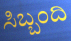
ಸಿಬ್ಬಂದಿ